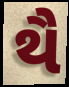
થૈ